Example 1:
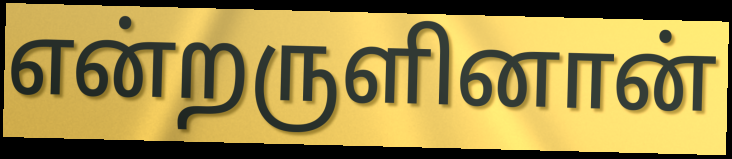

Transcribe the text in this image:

என்றருளினான்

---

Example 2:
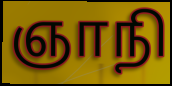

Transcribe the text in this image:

ஞாநி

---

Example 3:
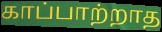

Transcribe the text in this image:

காப்பாற்றாத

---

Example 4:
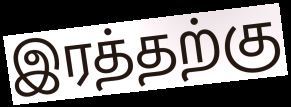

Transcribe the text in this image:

இரத்தற்கு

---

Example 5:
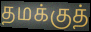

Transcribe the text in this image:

தமக்குத்